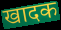
खादक